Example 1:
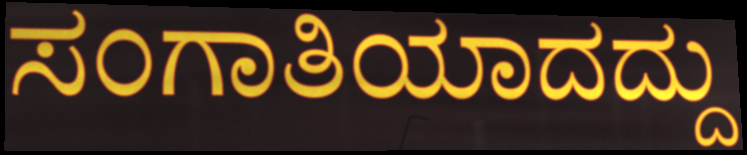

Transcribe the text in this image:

ಸಂಗಾತಿಯಾದದ್ದು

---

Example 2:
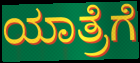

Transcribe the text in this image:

ಯಾತ್ರೆಗೆ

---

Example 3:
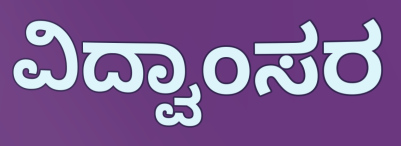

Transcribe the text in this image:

ವಿದ್ವಾಂಸರ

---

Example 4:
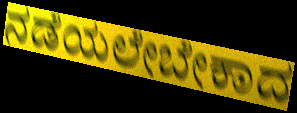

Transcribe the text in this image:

ನಡೆಯಲೇಬೇಕಾದ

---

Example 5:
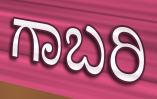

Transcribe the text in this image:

ಗಾಬರಿ